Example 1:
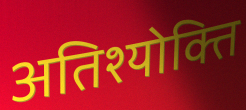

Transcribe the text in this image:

अतिश्योक्ति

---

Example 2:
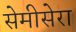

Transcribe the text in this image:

सेमीसेरा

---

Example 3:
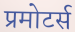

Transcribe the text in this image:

प्रमोटर्स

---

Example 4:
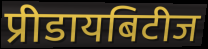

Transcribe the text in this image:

प्रीडायबिटीज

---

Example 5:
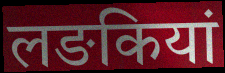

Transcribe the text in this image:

लङकियां